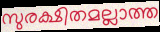
സുരക്ഷിതമല്ലാത്ത